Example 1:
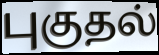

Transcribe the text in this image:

புகுதல்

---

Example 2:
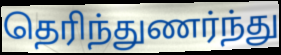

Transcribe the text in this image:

தெரிந்துணர்ந்து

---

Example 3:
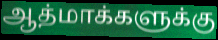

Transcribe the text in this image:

ஆத்மாக்களுக்கு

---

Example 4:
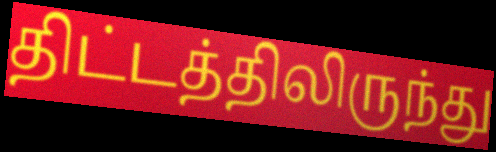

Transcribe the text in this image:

திட்டத்திலிருந்து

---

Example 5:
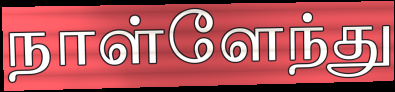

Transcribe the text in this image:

நாள்ளேந்து